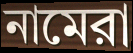
নামেরা